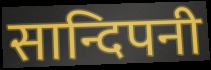
सान्दिपनी